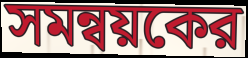
সমন্বয়কের